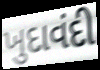
ખુદાવંદી